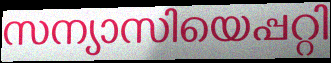
സന്യാസിയെപ്പറ്റി